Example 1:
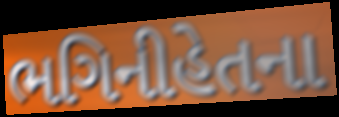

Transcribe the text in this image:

ભગિનીહેતના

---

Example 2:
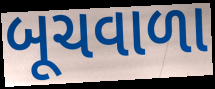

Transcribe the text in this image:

બૂચવાળા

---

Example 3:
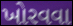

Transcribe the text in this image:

ખોરવવા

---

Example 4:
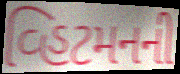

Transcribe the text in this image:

વ્હિટમનની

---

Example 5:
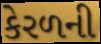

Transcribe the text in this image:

કેરળની